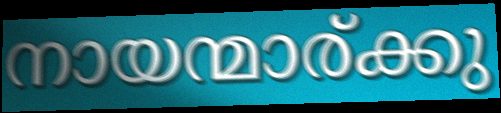
നായന്മാര്ക്കു